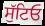
ਸੁੱਟਿਓ